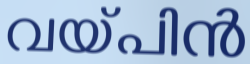
വയ്പിൻ